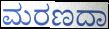
ಮರಣದಾ